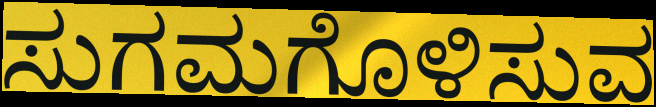
ಸುಗಮಗೊಳಿಸುವ